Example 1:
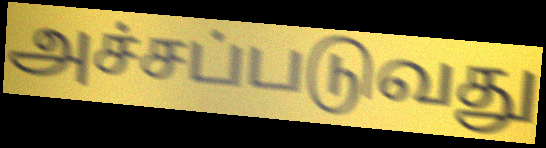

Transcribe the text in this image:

அச்சப்படுவது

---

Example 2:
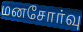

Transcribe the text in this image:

மனசோர்வு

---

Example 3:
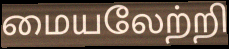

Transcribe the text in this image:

மையலேற்றி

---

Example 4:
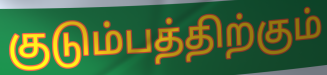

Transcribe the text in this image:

குடும்பத்திற்கும்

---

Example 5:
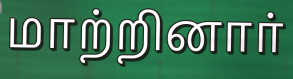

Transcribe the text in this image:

மாற்றினார்